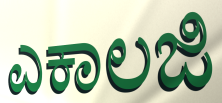
ಎಕಾಲಜಿ